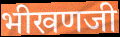
भीखणजी